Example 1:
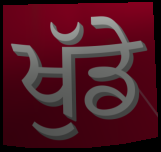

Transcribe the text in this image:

ਖੁੱਡੇ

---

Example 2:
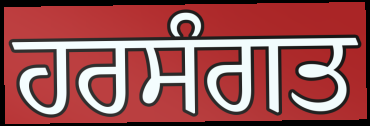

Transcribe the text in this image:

ਹਰਸੰਗਤ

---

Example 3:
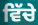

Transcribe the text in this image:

ਵਿੱਚੇ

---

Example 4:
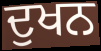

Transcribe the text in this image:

ਦੁਖਨ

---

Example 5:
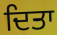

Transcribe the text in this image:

ਦਿਤਾ